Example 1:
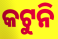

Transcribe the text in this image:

କଟୁନି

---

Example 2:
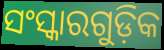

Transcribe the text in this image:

ସଂସ୍କାରଗୁଡ଼ିକ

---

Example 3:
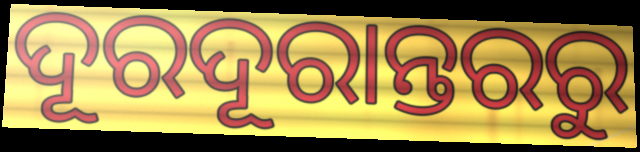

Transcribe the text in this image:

ଦୂରଦୂରାନ୍ତରରୁ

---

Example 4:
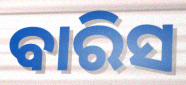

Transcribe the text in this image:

ବାରିସ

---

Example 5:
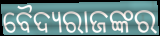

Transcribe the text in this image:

ବୈଦ୍ୟରାଜଙ୍କର